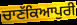
ਚਾਣੱਕਿਆਪੁਰੀ